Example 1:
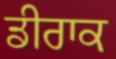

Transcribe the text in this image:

ਡੀਰਾਕ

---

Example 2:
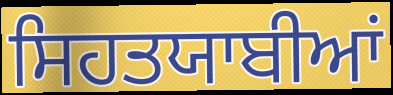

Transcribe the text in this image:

ਸਿਹਤਯਾਬੀਆਂ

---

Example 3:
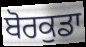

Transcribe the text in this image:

ਬੋਰਕੁਡਾ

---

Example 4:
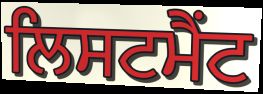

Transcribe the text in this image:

ਲਿਸਟਮੈਂਟ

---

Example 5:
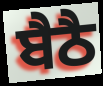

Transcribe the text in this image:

ਬੈਠੈ